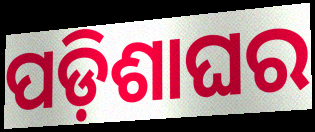
ପଡ଼ିଶାଘର